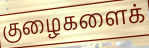
குழைகளைக்